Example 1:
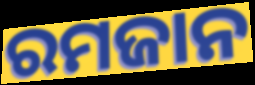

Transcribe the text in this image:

ରମଜାନ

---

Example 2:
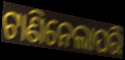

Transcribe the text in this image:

ଟାଣିନେଲାପରି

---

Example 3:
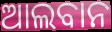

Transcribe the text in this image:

ଆଲବାନ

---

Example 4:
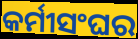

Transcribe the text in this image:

କର୍ମୀସଂଘର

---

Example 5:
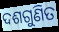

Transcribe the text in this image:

ଦଶଗୁଣିତ